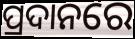
ପ୍ରଦାନରେ